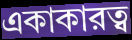
একাকারত্ব